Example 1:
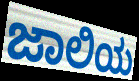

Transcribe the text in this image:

ಜಾಲಿಯ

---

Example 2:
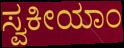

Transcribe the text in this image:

ಸ್ವಕೀಯಾಂ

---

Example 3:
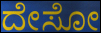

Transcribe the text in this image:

ದೇಸೋ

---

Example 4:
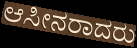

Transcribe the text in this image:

ಆಸೀನರಾದರು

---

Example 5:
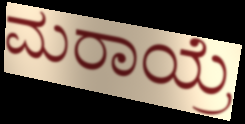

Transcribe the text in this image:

ಮರಾಯ್ರೆ